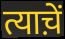
त्याच़ें